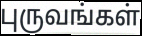
புருவங்கள்